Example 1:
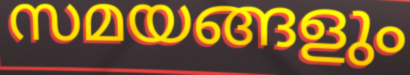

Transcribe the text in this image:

സമയങ്ങളും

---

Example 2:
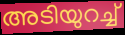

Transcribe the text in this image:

അടിയുറച്ച്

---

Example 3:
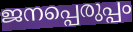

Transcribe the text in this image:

ജനപ്പെരുപ്പം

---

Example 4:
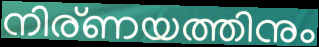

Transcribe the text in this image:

നിര്ണയത്തിനും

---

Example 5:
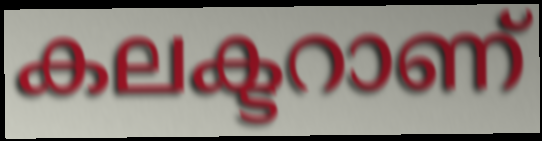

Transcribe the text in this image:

കലക്ടറാണ്